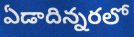
ఏడాదిన్నరలో